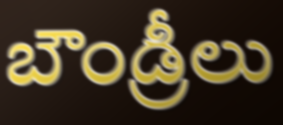
బౌండ్రీలు